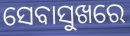
ସେବାସୁଖରେ